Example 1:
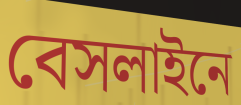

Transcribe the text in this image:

বেসলাইনে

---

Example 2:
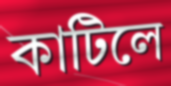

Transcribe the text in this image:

কাটিলে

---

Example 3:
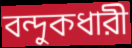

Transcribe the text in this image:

বন্দুকধারী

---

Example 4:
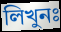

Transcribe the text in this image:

লিখুনঃ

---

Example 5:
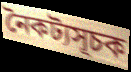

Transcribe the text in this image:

নৈকট্যসূচক